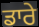
ਡਾਰੇ